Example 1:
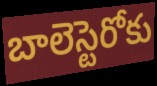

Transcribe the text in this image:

బాలెస్టెరోకు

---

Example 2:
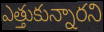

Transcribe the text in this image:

ఎత్తుకున్నారని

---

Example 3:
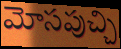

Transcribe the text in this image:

మోసపుచ్చి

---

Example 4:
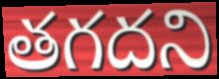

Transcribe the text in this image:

తగదని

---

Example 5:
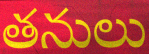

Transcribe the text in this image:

తనులు